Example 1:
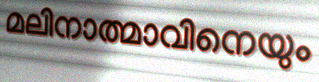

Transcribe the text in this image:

മലിനാത്മാവിനെയും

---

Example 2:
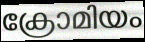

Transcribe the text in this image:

ക്രോമിയം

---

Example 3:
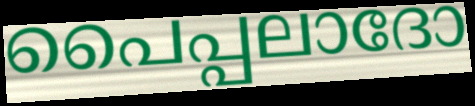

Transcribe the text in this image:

പൈപ്പലാദോ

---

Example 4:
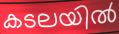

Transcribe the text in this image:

കടലയിൽ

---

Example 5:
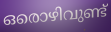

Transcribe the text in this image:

ഒരൊഴിവുണ്ട്